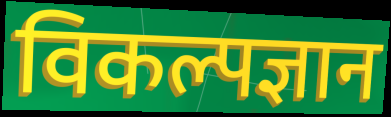
विकल्पज्ञान